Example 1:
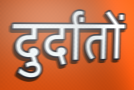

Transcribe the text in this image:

दुर्दांतों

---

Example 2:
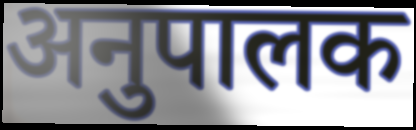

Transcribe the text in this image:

अनुपालक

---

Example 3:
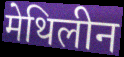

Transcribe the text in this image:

मेथिलीन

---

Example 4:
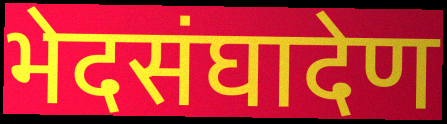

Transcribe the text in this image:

भेदसंघादेण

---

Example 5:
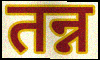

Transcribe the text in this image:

तन्न